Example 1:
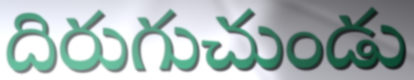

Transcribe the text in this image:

దిరుగుచుండు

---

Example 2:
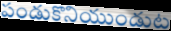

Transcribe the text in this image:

పండుకొనియుండుట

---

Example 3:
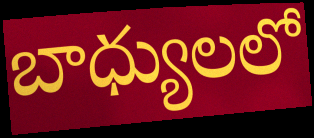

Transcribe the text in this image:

బాధ్యులలో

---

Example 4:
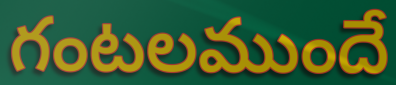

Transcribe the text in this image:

గంటలముందే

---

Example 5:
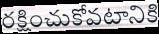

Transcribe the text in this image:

రక్షించుకోవటానికి